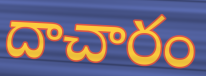
దాచారం